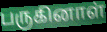
பருகினாள்